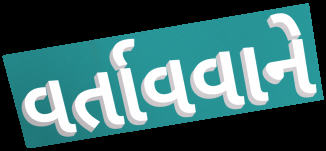
વર્તાવવાને